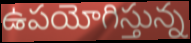
ఉపయోగిస్తున్న